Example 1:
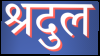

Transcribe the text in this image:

श्रदुल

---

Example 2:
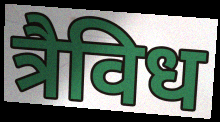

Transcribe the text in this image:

त्रैविध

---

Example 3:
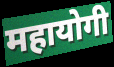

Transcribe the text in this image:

महायोगी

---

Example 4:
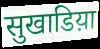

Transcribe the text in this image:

सुखाडिय़ा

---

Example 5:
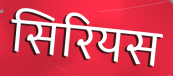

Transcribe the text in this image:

सिरियस